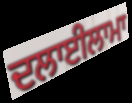
ਦਲਾਈਲਾਮਾ